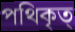
পথিকৃত্